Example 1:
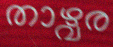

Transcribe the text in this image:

താഴ്വര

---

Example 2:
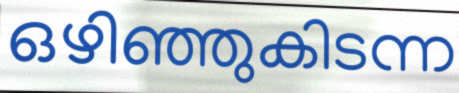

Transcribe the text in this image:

ഒഴിഞ്ഞുകിടന്ന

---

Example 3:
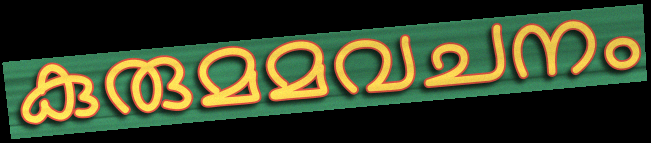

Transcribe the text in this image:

കുരുമമവചനം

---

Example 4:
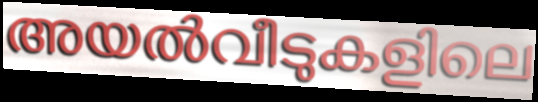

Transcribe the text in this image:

അയൽവീടുകളിലെ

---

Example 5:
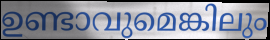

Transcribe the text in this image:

ഉണ്ടാവുമെങ്കിലും